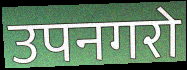
उपनगरो